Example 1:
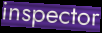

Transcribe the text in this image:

inspector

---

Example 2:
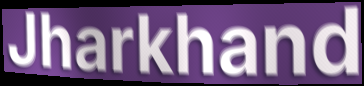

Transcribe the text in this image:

Jharkhand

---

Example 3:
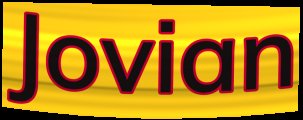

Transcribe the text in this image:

Jovian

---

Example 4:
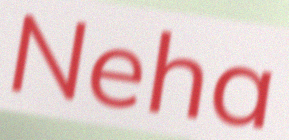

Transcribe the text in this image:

Neha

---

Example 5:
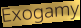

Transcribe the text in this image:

Exogamy